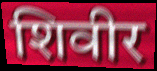
शिवीर